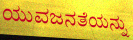
ಯುವಜನತೆಯನ್ನು